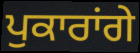
ਪੁਕਾਰਾਂਗੇ